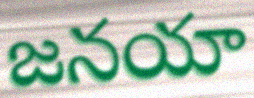
జనయా